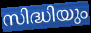
സിദ്ധിയും